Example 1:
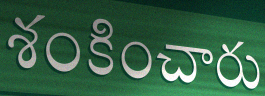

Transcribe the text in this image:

శంకించారు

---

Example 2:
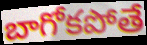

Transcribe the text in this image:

బాగోకపోతే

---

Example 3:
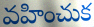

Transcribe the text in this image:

వహించుక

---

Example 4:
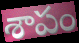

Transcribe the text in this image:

శాపం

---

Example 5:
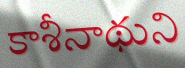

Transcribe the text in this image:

కాశీనాథుని